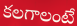
కలగాలంటే